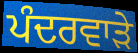
ਪੰਦਰਵਾੜੇ